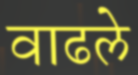
वाढले